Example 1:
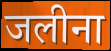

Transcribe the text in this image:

जलीना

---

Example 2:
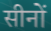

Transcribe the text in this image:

सीनों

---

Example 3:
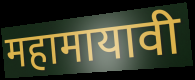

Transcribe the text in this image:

महामायावी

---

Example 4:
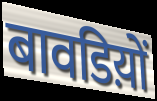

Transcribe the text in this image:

बावडिय़ों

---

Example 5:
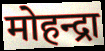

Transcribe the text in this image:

मोहन्द्रा